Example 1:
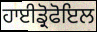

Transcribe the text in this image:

ਹਾਈਡ੍ਰੋਫੋਇਲ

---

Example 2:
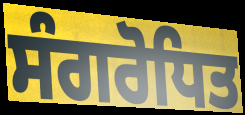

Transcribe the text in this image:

ਸੰਗਰੋਧਿਤ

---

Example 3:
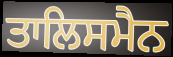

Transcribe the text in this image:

ਤਾਲਿਸਮੈਨ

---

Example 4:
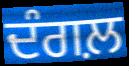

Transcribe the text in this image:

ਦੰਗਲ਼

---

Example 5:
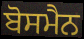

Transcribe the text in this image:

ਬੋਸਮੈਨ